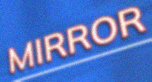
MIRROR